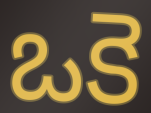
ఒకె